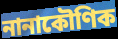
নানাকৌণিক